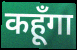
कहूँगा